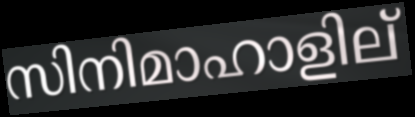
സിനിമാഹാളില്